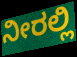
ನೀರಲ್ಲಿ